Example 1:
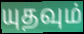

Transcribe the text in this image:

யுதவும்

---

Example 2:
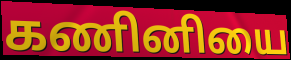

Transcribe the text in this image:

கணினியை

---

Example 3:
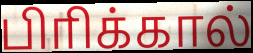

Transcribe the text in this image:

பிரிக்கால்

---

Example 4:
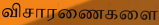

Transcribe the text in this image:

விசாரணைகளை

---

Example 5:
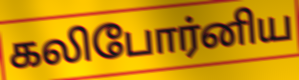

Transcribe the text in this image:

கலிபோர்னிய